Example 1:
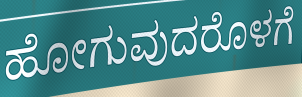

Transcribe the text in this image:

ಹೋಗುವುದರೊಳಗೆ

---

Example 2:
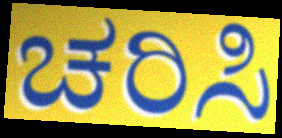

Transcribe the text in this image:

ಚರಿಸಿ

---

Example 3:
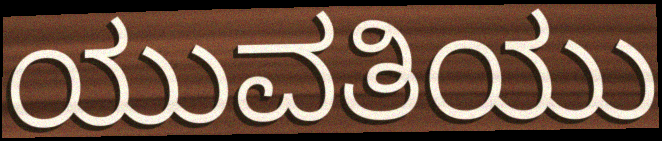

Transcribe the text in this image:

ಯುವತಿಯು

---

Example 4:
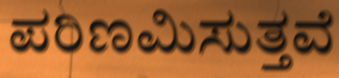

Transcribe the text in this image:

ಪರಿಣಮಿಸುತ್ತವೆ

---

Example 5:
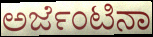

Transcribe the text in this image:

ಅರ್ಜೆಂಟಿನಾ